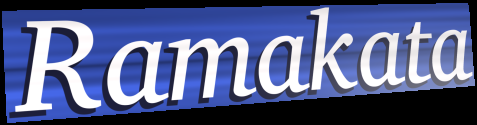
Ramakata